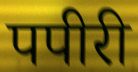
पपीरी